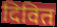
दिवित